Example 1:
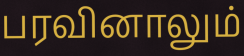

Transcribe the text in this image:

பரவினாலும்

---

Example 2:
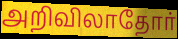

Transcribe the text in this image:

அறிவிலாதோர்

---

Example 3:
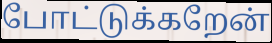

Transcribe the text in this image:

போட்டுக்கறேன்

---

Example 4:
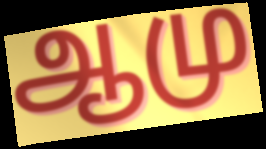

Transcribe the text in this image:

ஆமு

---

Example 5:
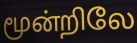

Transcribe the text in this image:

மூன்றிலே